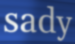
sady